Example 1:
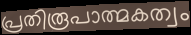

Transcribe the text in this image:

പ്രതിരൂപാത്മകത്വം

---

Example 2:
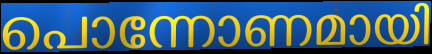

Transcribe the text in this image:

പൊന്നോണമായി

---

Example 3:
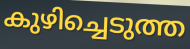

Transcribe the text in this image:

കുഴിച്ചെടുത്ത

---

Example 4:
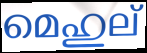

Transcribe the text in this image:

മെഹുല്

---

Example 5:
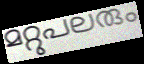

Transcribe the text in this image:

മറ്റുപലരും